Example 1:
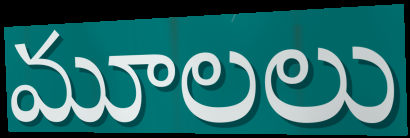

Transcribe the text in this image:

మూలలు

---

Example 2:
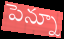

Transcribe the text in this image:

పెన్నూ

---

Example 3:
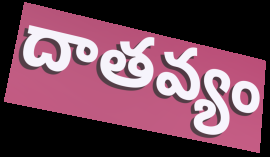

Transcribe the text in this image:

దాతవ్యం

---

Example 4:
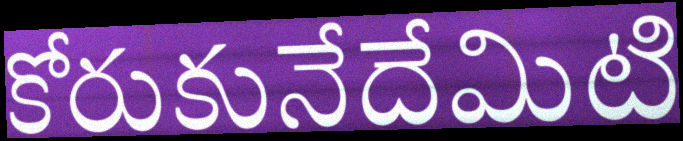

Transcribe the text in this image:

కోరుకునేదేమిటి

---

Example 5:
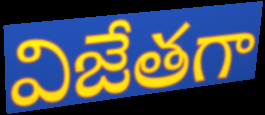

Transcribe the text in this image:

విజేతగా